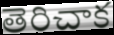
తెరిచాక